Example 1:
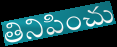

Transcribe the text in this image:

తినిపించు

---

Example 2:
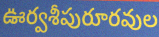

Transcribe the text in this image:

ఊర్వశీపురూరవుల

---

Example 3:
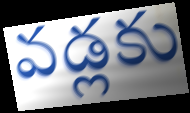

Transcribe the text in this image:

వడ్లకు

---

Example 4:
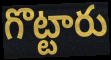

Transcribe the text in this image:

గొట్టారు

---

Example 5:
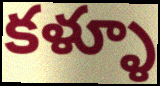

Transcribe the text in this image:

కళ్ళూ